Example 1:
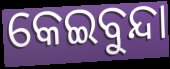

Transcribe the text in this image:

କେଇବୁନ୍ଦା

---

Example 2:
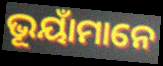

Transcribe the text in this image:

ଭୂୟାଁମାନେ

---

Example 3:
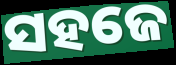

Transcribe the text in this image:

ସହଜେ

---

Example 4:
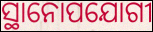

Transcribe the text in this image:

ସ୍ଥାନୋପଯୋଗୀ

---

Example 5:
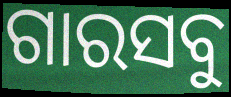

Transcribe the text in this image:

ଗାରସବୁ